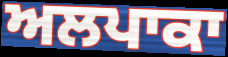
ਅਲਪਾਕਾ